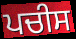
ਪਚੀਸ